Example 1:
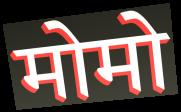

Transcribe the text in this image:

मोमो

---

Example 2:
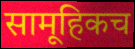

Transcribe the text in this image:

सामूहिकच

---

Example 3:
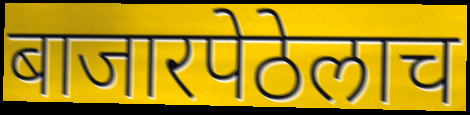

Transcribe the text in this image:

बाजारपेठेलाच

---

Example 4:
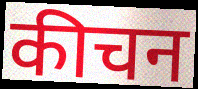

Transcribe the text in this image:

कीचन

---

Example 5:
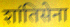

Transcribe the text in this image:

शांतिसेना